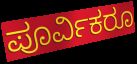
ಪೂರ್ವಿಕರೂ